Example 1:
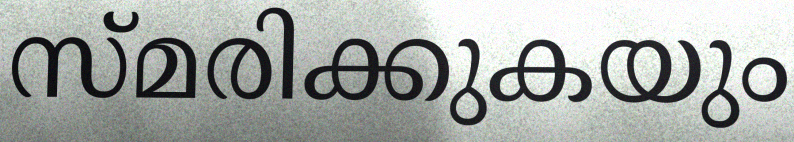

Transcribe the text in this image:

സ്മരിക്കുകയും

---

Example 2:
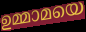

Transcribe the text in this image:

ഉമ്മാമയെ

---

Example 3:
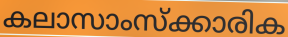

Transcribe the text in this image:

കലാസാംസ്ക്കാരിക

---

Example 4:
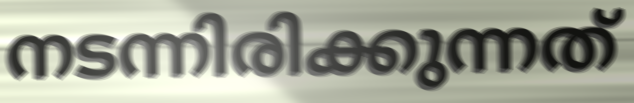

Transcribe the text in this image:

നടന്നിരിക്കുന്നത്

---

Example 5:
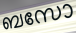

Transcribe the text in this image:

ബസോ